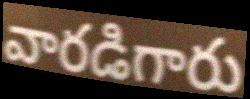
వారడిగారు